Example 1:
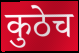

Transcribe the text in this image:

कुठेच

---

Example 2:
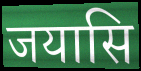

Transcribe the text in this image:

जयासि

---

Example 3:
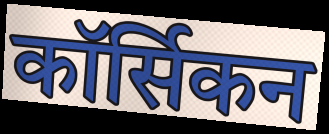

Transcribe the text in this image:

कॉर्सिकन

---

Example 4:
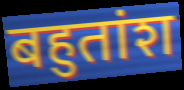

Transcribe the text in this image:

बहुतांश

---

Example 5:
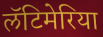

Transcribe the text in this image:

लॅटिमेरिया